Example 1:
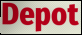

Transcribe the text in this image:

Depot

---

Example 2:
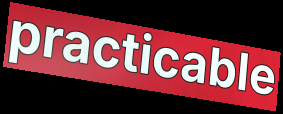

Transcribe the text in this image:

practicable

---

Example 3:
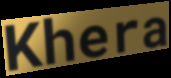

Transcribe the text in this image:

Khera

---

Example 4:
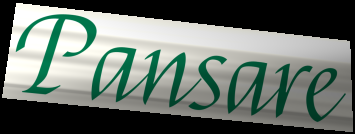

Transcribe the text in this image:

Pansare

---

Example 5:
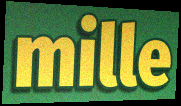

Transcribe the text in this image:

mille